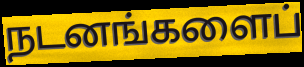
நடனங்களைப்